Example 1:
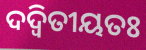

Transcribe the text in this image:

ଦଦ୍ୱିତୀୟତଃ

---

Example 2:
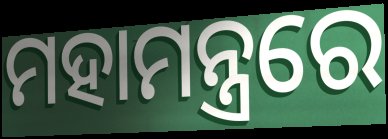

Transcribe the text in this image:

ମହାମନ୍ତ୍ରରେ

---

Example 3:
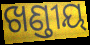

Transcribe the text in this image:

ଖଣ୍ଡୀୟ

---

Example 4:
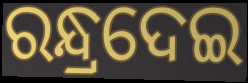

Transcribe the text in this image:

ରନ୍ଧ୍ରଦେଇ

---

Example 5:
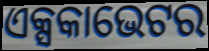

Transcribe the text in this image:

ଏକ୍ସକାଭେଟର